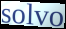
solvo